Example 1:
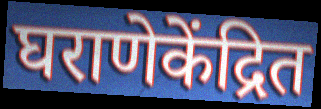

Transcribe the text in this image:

घराणेकेंद्रित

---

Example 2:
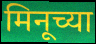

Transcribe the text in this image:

मिनूच्या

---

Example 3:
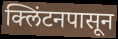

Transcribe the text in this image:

क्लिंटनपासून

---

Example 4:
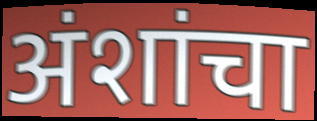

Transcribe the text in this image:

अंशांचा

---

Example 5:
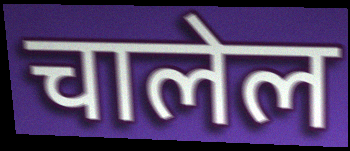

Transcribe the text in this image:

चालेल